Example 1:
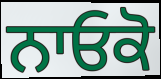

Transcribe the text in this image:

ਨਾਓਕੋ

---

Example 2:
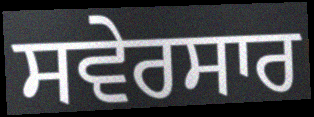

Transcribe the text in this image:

ਸਵੇਰਸਾਰ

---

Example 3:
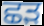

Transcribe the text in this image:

ਛੜ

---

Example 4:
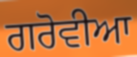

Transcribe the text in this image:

ਗਰੋਵੀਆ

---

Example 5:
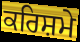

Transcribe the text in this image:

ਕਰਿਸ਼ਮੇ